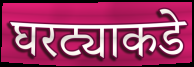
घरट्याकडे